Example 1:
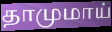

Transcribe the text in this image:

தாமுமாய்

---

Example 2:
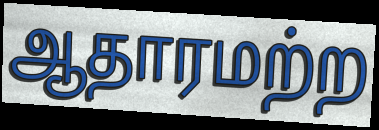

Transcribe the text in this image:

ஆதாரமற்ற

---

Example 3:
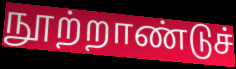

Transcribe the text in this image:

நூற்றாண்டுச்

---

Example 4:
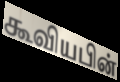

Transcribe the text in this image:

கூவியபின்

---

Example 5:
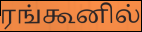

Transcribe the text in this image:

ரங்கூனில்